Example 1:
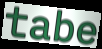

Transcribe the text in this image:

tabe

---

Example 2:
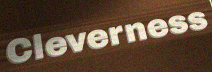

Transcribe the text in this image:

Cleverness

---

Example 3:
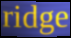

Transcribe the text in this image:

ridge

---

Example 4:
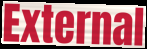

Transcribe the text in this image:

External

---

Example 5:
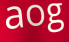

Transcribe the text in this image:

aog